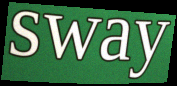
sway